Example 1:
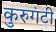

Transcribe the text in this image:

कुरुगंटी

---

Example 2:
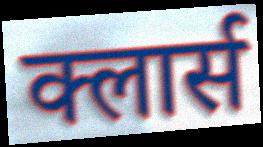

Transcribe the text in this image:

क्लार्स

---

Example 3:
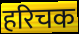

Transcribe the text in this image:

हरिचक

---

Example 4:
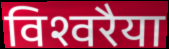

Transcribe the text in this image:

विश्वरैया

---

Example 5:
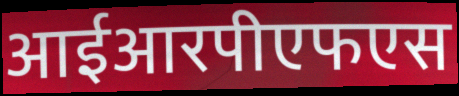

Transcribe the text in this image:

आईआरपीएफएस